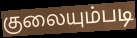
குலையும்படி